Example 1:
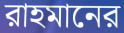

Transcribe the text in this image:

রাহমানের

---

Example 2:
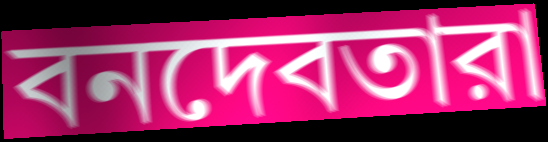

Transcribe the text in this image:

বনদেবতারা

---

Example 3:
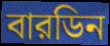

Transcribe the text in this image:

বারডিন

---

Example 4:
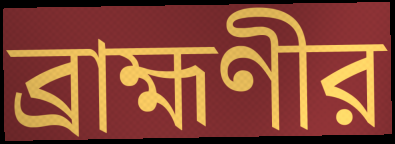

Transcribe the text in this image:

ব্রাহ্মণীর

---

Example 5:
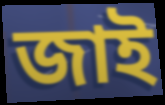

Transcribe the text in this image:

জাই